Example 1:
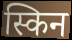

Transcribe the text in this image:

स्किन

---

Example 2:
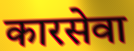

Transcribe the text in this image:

कारसेवा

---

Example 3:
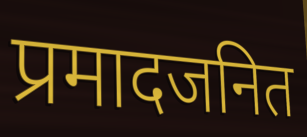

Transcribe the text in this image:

प्रमादजनित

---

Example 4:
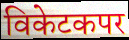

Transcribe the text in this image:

विकेटकपर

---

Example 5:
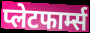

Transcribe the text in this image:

प्लेटफार्म्स